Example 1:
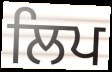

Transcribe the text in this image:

ਲਿਪ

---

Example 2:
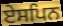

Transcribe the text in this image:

ਏਸਪਿਨ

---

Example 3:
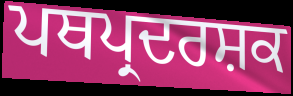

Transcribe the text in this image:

ਪਥਪ੍ਰਦਰਸ਼ਕ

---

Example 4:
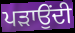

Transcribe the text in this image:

ਪੜਾਉਂਦੀ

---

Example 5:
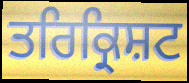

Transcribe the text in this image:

ਤਰਿਕ੍ਰਿਸ਼ਟ